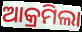
ଆକ୍ରମିଲା